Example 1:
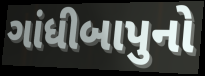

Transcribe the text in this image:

ગાંધીબાપુનો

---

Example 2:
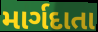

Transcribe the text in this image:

માર્ગદાતા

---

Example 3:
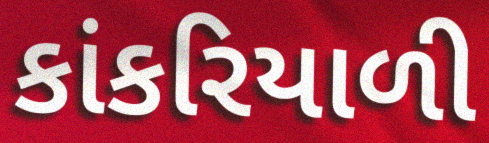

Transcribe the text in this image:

કાંકરિયાળી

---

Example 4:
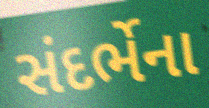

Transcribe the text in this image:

સંદર્ભેના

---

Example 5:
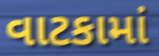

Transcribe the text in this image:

વાટકામાં